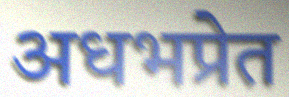
अधभप्रेत